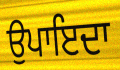
ਉਪਾਇਦਾ